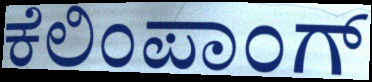
ಕೆಲಿಂಪಾಂಗ್